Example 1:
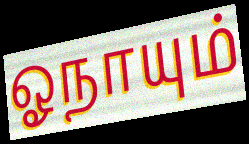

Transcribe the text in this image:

ஓநாயும்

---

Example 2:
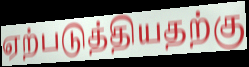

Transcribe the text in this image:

ஏற்படுத்தியதற்கு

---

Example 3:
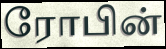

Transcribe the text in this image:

ரோபின்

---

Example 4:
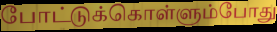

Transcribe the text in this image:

போட்டுக்கொள்ளும்போது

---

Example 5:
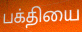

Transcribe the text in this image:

பக்தியை